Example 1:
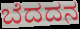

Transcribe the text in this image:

ಬೆದದನ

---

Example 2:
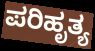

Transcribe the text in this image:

ಪರಿಹೃತ್ಯ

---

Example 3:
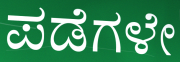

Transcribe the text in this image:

ಪಡೆಗಳೇ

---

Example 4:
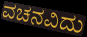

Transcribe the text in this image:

ವಚನವಿದು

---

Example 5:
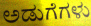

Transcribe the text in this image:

ಅಡುಗೆಗಳು